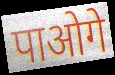
पाओगे